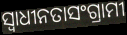
ସ୍ଵାଧୀନତାସଂଗ୍ରାମୀ